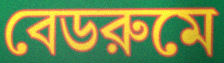
বেডরুমে